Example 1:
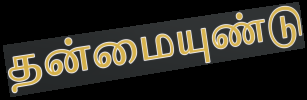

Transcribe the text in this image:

தன்மையுண்டு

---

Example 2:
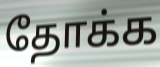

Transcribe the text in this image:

தோக்க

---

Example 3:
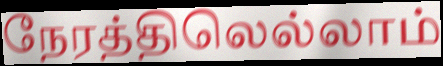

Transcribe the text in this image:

நேரத்திலெல்லாம்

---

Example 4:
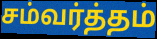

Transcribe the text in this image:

சம்வர்த்தம்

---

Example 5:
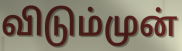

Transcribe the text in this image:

விடும்முன்